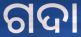
ଗଦା